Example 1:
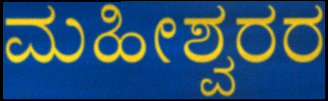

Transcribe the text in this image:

ಮಹೀಶ್ವರರ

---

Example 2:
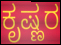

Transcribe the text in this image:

ಕೃಷ್ಣರ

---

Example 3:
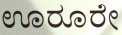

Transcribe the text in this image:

ಊರೂರೇ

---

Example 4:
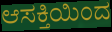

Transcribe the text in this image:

ಆಸಕ್ತಿಯಿಂದ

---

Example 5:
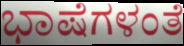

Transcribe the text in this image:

ಭಾಷೆಗಳಂತೆ